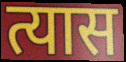
त्यास